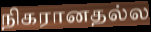
நிகரானதல்ல